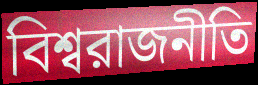
বিশ্বরাজনীতি